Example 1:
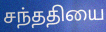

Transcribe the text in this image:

சந்ததியை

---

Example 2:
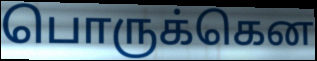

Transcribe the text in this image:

பொருக்கென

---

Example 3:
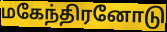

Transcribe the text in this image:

மகேந்திரனோடு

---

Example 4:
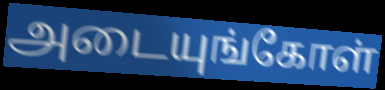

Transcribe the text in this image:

அடையுங்கோள்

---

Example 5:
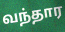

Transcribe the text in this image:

வந்தார